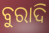
ବୁରାଦି